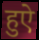
हुऐ